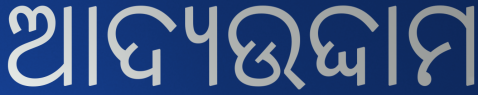
ଆଦ୍ୟଉଦ୍ଦାମ